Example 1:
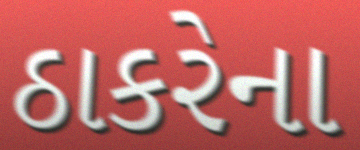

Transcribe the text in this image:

ઠાકરેના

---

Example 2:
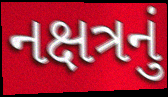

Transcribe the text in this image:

નક્ષત્રનું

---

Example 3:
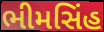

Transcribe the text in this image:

ભીમસિંહ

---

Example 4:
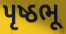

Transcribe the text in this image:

પૃષ્ઠભૂ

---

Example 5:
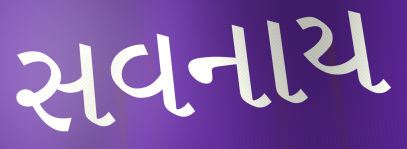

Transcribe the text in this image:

સવનાય